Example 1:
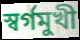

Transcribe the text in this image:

স্বর্গমুখী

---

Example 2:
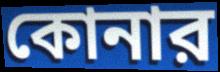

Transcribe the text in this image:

কোনার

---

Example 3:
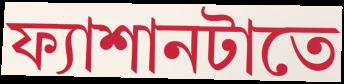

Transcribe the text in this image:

ফ্যাশানটাতে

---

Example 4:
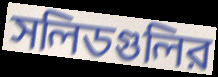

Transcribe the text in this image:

সলিডগুলির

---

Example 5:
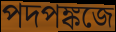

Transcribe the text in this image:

পদপঙ্কজে